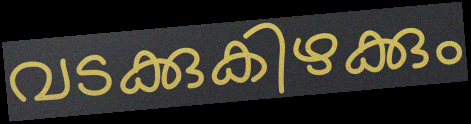
വടക്കുകിഴക്കും